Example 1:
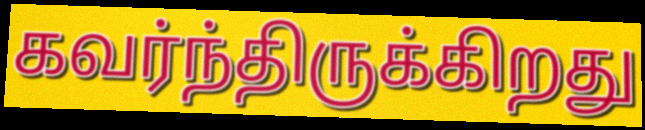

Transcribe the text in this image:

கவர்ந்திருக்கிறது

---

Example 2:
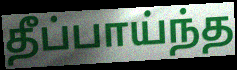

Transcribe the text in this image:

தீப்பாய்ந்த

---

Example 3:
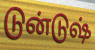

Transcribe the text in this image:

டுன்டுஷ்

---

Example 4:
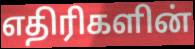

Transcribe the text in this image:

எதிரிகளின்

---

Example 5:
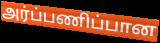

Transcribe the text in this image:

அர்ப்பணிப்பான